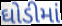
ઘોડીમાં